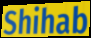
Shihab